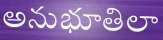
అనుభూతిలా